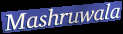
Mashruwala